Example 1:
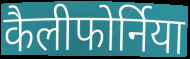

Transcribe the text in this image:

कैलीफोर्निया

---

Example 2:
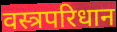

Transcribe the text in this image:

वस्त्रपरिधान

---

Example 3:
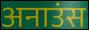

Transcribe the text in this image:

अनाउंस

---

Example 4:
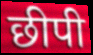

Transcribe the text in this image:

छीपी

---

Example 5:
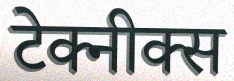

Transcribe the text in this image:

टेक्नीक्स